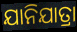
ଯାନିଯାତ୍ରା